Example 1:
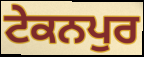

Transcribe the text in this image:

ਟੇਕਨਪੁਰ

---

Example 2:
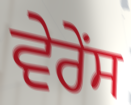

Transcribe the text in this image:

ਵੇਰੇਂਸ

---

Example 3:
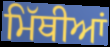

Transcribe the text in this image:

ਮਿੱਥੀਆਂ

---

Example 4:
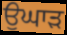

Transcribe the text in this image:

ਉਘਾੜ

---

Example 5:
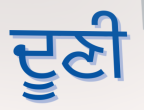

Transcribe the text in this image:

ਦੂਣੀ